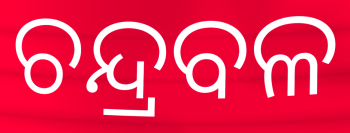
ଚନ୍ଦ୍ରବଳ